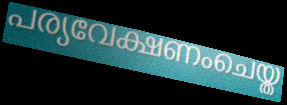
പര്യവേക്ഷണംചെയ്ത